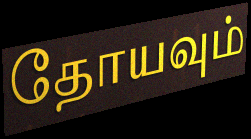
தோயவும்